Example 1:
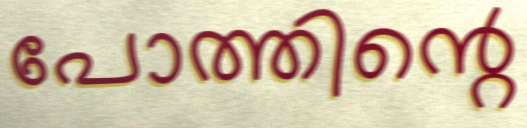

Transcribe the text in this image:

പോത്തിന്റെ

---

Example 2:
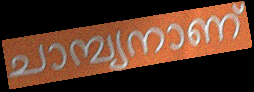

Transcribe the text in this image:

ചാമ്പ്യനാണ്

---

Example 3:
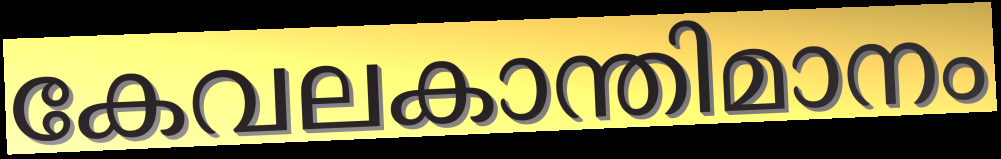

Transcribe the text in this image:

കേവലകാന്തിമാനം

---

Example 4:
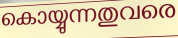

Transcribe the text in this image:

കൊയ്യുന്നതുവരെ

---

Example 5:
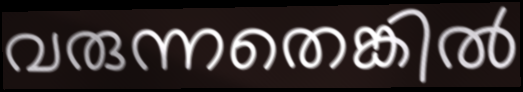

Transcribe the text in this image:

വരുന്നതെങ്കിൽ